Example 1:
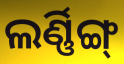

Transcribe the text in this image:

ଲର୍ଣ୍ଣିଙ୍ଗ୍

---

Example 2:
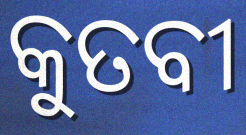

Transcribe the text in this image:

କୁତବୀ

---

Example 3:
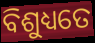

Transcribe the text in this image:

ବିଶୁଧ୍ୟତେ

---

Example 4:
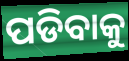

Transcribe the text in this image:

ପଡିବାକୁ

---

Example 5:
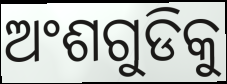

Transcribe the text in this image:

ଅଂଶଗୁଡିକୁ